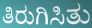
ತಿರುಗಿಸಿತು